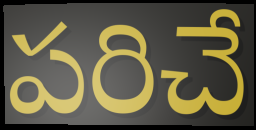
పరిచే